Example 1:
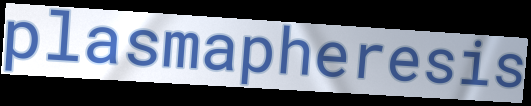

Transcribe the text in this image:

plasmapheresis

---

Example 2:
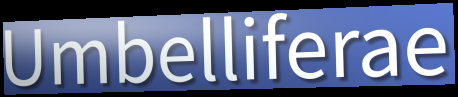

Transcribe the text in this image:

Umbelliferae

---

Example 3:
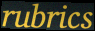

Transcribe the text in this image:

rubrics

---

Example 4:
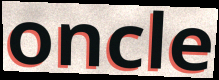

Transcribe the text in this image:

oncle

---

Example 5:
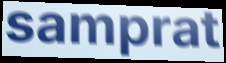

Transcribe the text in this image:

samprat